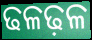
ଢଳଢ଼ଳ